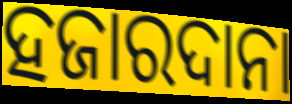
ହଜାରଦାନା